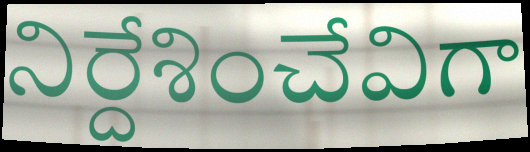
నిర్దేశించేవిగా